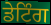
ਡੇਟਿੰਗ